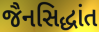
જૈનસિદ્ધાંત